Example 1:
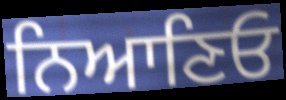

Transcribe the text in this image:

ਨਿਆਣਿਓ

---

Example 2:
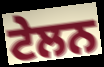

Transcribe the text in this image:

ਟੇਲਨ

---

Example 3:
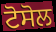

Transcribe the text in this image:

ਟੋਸੋਲ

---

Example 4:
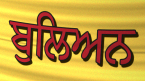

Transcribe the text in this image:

ਬੁਲਿਅਨ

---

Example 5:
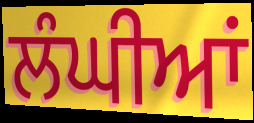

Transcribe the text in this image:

ਲੰਘੀਆਂ